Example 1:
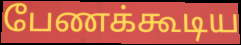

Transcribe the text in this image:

பேணக்கூடிய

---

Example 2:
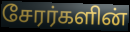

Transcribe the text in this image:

சேரர்களின்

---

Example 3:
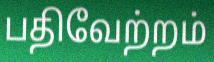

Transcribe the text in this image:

பதிவேற்றம்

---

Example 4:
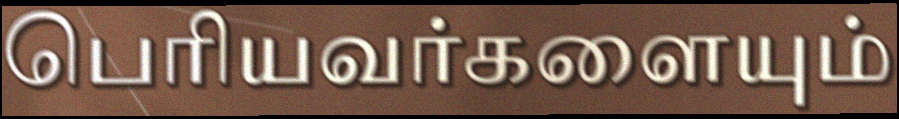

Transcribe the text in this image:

பெரியவர்களையும்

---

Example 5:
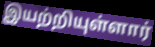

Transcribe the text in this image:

இயற்றியுள்ளார்